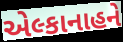
એલ્કાનાહને